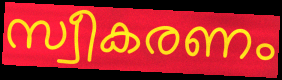
സ്വീകരണം